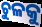
ଚୁଳକୁ